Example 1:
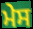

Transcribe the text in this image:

ਮੇਸ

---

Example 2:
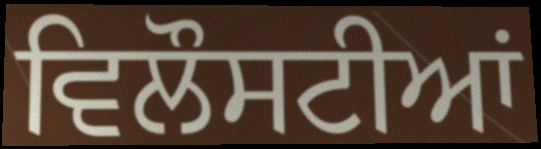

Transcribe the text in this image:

ਵਿਲੌਸਟੀਆਂ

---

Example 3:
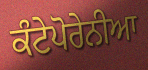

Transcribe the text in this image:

ਕੰਟੇਪੋਰੇਨੀਆ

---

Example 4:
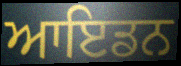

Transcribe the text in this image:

ਆਇਡਨ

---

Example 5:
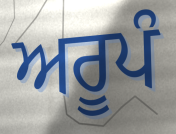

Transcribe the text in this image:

ਅਰੂਪੰ